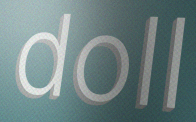
doll